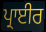
ਪ੍ਰਾਈਰ